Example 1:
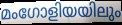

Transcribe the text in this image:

മംഗോളിയയിലും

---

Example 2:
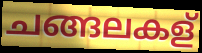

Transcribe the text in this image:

ചങ്ങലകള്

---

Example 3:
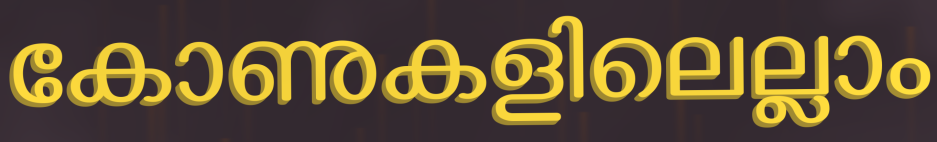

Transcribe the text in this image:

കോണുകളിലെല്ലാം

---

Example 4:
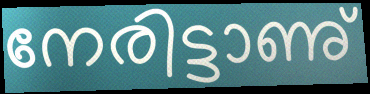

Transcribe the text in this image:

നേരിട്ടാണു്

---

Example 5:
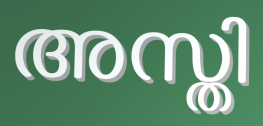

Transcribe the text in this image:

അസ്തി